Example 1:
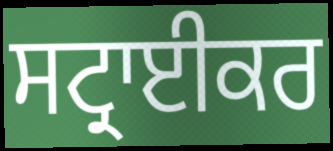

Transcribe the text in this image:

ਸਟ੍ਰਾਈਕਰ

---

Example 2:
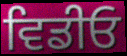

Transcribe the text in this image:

ਵਿਡੀਓ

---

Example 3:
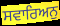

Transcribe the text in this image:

ਸਵਾਰਿਅਨੁ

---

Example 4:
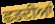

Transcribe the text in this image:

ਛਡਦੀਆਂ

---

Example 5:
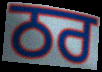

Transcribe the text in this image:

ਠਰ